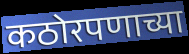
कठोरपणाच्या